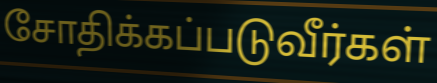
சோதிக்கப்படுவீர்கள்